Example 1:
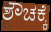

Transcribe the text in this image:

ಶೌಚಕ್ಕೆ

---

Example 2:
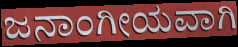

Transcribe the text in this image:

ಜನಾಂಗೀಯವಾಗಿ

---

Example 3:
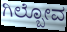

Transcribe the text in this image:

ಗಿಲ್ಬೋವ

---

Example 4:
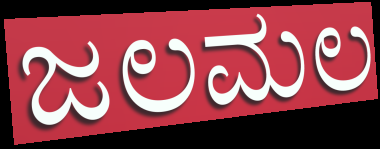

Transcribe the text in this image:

ಜಲಮಲ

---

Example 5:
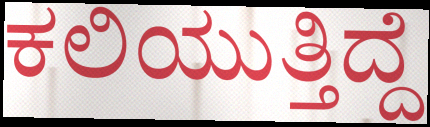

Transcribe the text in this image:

ಕಲಿಯುತ್ತಿದ್ದೆ